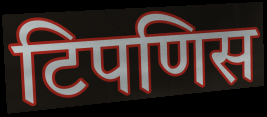
टिपणिस